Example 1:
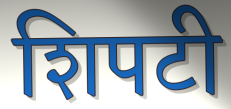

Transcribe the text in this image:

शिपटी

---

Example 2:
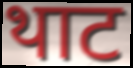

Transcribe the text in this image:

थाट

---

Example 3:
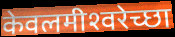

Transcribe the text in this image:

केवलमीश्वरेच्छा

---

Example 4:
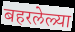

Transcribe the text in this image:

बहरलेल्या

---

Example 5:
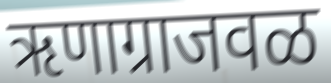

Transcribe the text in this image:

ऋणाग्राजवळ